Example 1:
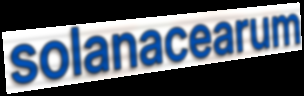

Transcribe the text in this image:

solanacearum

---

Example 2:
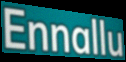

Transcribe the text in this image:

Ennallu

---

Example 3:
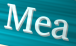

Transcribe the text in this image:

Mea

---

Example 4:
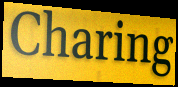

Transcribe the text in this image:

Charing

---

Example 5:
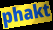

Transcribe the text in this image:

phakt